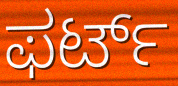
ಫರ್ಟ್